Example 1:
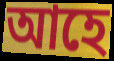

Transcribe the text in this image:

আহে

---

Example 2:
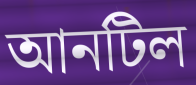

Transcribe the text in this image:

আনটিল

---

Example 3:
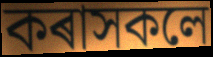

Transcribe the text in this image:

কৰাসকলে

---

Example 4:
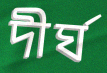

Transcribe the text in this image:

দীৰ্ঘ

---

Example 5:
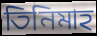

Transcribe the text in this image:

তিনিমাহ